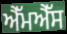
ਐੱਮਐੱਸ